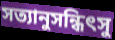
সত্যানুসন্ধিৎসু